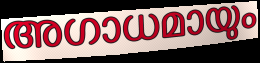
അഗാധമായും